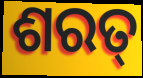
ଶରତ୍